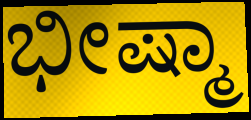
ಭೀಷ್ಮಾ